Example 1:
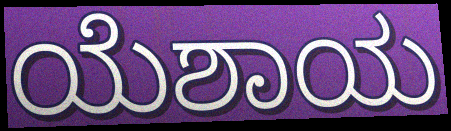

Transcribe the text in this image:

ಯೆಶಾಯ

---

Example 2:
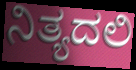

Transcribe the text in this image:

ನಿತ್ಯದಲಿ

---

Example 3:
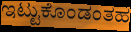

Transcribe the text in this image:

ಇಟ್ಟುಕೊಂಡಂತಹ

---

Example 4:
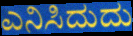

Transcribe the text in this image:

ಎನಿಸಿದುದು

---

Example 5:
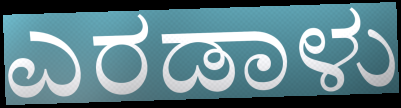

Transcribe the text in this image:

ಎರಡಾಳು